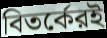
বিতর্কেরই